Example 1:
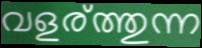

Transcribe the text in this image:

വളര്ത്തുന്ന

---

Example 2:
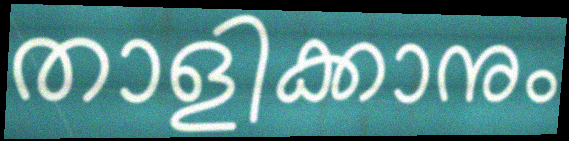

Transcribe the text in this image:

താളിക്കാനും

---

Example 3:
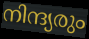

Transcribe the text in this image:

നിന്ദ്യരും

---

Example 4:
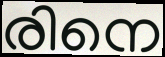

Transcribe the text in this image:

രിനെ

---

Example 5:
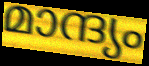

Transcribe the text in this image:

മാന്ദ്യം